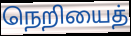
நெறியைத்